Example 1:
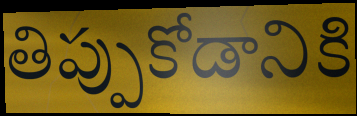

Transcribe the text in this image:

తిప్పుకోడానికి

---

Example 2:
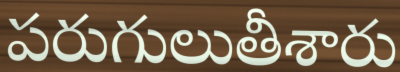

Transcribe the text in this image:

పరుగులుతీశారు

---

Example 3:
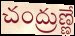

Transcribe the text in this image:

చంద్రుణ్ణే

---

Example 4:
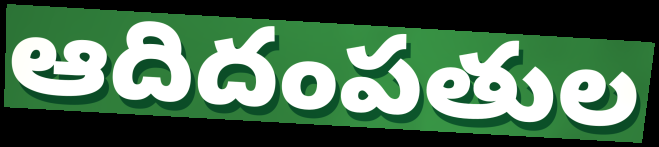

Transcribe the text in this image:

ఆదిదంపతుల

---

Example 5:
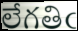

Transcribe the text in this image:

లేగతిఁ